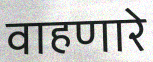
वाहणारे